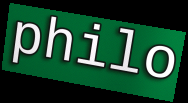
philo